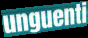
unguenti